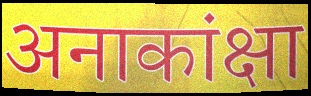
अनाकांक्षा